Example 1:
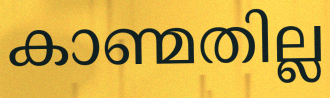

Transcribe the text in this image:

കാണ്മതില്ല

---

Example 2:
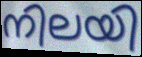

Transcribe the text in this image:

നിലയി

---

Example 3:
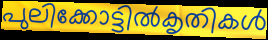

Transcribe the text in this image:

പുലിക്കോട്ടിൽകൃതികൾ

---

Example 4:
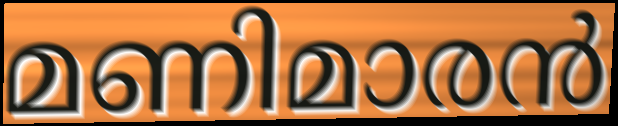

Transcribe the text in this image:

മണിമാരൻ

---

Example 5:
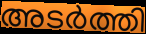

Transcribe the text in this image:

അടർത്തി